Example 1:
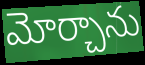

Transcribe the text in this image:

మోర్చాను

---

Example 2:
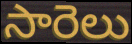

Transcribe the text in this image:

సారెలు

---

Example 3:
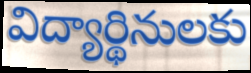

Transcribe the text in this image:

విద్యార్థినులకు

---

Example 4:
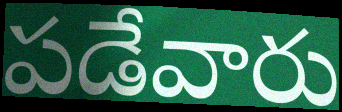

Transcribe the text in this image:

పడేవారు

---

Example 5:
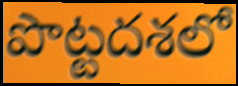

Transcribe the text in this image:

పొట్టదశలో